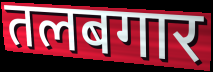
तलबगार